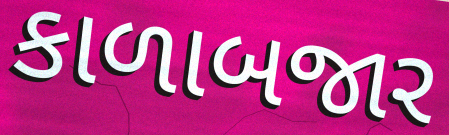
કાળાબજાર